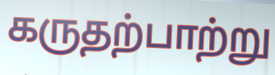
கருதற்பாற்று